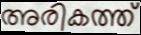
അരികത്ത്